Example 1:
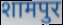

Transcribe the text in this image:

शामपुर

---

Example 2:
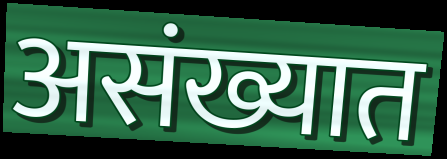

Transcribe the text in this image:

असंख्यात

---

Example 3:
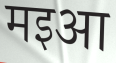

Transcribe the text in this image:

मइआ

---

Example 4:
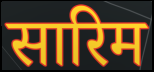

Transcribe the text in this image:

सारिम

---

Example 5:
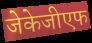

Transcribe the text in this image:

जेकेजीएफ